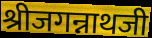
श्रीजगन्नाथजी